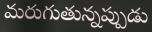
మరుగుతున్నప్పుడు